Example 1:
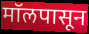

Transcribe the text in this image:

मॉलपासून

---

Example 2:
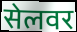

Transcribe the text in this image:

सेलवर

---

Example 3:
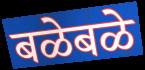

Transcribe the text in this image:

बळेबळे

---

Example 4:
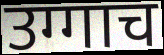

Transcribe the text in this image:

उग्गाच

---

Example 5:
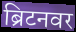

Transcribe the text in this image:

ब्रिटनवर